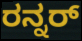
ರನ್ನರ್